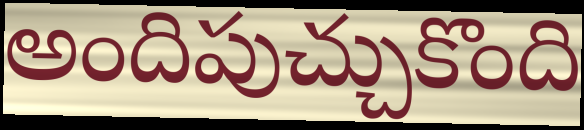
అందిపుచ్చుకొంది